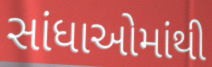
સાંધાઓમાંથી